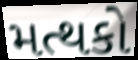
મત્થકો